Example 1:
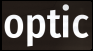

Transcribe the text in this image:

optic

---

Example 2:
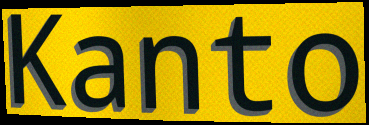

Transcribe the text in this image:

Kanto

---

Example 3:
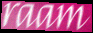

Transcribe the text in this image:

raam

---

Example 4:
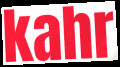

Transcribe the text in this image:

kahr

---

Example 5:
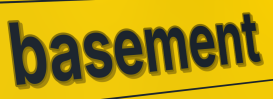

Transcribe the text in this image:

basement